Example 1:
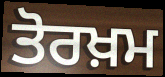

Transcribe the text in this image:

ਤੋਰਖ਼ਮ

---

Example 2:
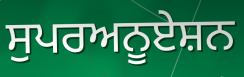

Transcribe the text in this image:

ਸੁਪਰਅਨੂਏਸ਼ਨ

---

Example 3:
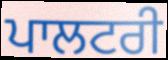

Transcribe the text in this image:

ਪਾਲਟਰੀ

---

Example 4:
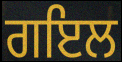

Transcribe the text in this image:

ਗਇਲ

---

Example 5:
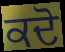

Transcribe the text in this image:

ਕਦੋ